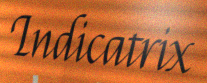
Indicatrix